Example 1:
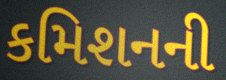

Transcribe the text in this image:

કમિશનની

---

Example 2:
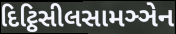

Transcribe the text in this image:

દિટ્ઠિસીલસામઞ્ઞેન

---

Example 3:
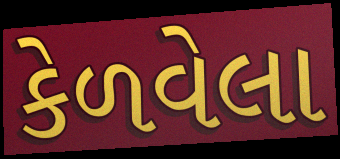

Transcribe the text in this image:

કેળવેલા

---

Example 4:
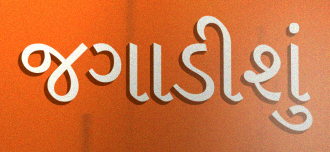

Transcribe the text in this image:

જગાડીશું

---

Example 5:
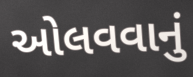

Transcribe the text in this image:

ઓલવવાનું